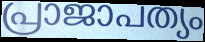
പ്രാജാപത്യം